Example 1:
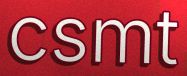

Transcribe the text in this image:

csmt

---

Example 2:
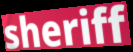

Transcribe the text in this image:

sheriff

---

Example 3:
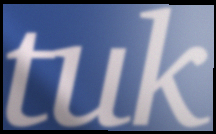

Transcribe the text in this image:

tuk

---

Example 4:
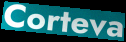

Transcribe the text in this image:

Corteva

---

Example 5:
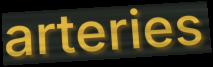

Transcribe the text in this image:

arteries